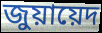
জুয়ায়েদ